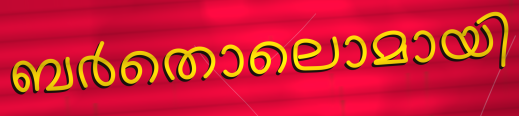
ബർതൊലൊമായി